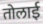
तोलाई